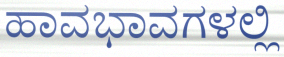
ಹಾವಭಾವಗಳಲ್ಲಿ